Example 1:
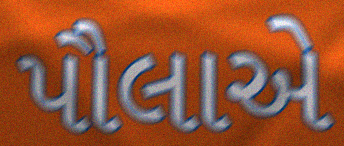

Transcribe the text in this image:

પૌલાએ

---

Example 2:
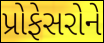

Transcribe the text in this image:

પ્રોફેસરોને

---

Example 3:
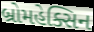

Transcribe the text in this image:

બ્રોમહેક્સિન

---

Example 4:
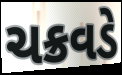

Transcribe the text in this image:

ચક્રવડે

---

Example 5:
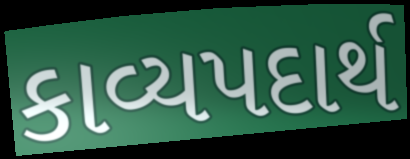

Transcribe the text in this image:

કાવ્યપદાર્થ